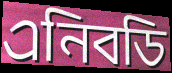
এনিবডি